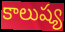
కాలుష్య